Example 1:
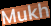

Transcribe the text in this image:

Mukh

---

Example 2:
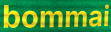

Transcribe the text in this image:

bommai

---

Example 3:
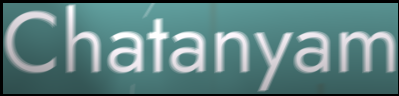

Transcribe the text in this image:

Chatanyam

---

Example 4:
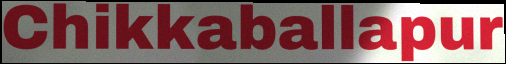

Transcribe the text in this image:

Chikkaballapur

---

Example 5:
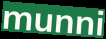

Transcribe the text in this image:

munni